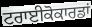
ਟਰਾਈਕੋਕਾਰਡਾਂ